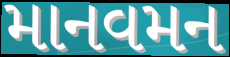
માનવમન